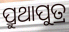
ପ୍ରୁଥାପୁତ୍ର